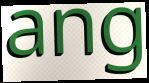
ang